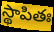
స్థాపితః